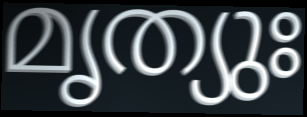
മൃത്യുഃ